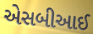
એસબીઆઈ